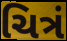
ચિત્રં